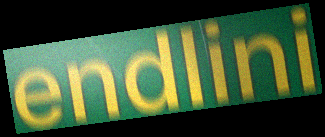
endlini